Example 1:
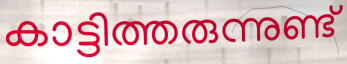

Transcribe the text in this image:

കാട്ടിത്തരുന്നുണ്ട്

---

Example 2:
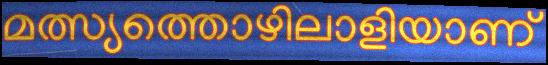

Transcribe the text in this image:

മത്സ്യത്തൊഴിലാളിയാണ്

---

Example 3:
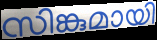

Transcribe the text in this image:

സിങ്കുമായി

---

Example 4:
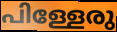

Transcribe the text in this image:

പിള്ളേരു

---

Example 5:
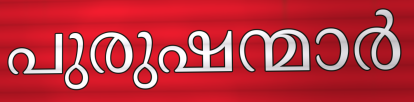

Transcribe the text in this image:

പുരുഷന്മാർ